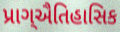
પ્રાગ્ઐતિહાસિક